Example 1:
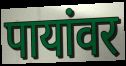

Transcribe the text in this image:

पायांवर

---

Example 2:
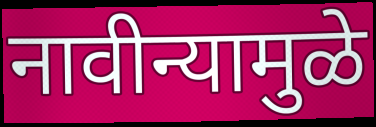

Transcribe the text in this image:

नावीन्यामुळे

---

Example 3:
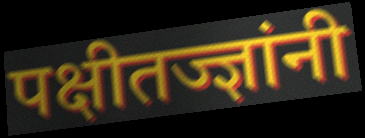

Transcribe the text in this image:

पक्षीतज्ज्ञांनी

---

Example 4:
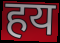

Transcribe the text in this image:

हय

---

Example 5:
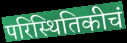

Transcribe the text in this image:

परिस्थितिकीचं